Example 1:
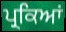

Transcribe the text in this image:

ਪ੍ਰਕਿਆਂ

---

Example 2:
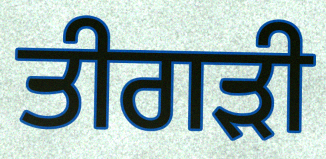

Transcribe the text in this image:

ਤੀਗੜੀ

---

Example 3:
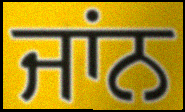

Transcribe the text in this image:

ਜਾਂਨ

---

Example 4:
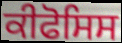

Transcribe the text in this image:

ਕੀਫੋਸਿਸ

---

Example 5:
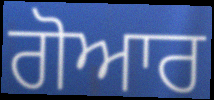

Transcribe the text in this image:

ਗੋਆਰ